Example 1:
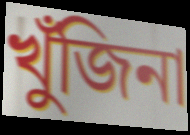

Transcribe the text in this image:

খুঁজিনা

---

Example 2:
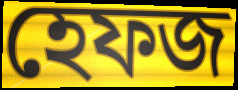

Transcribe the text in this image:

হেফজ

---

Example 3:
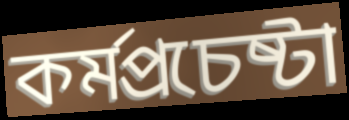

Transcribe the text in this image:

কর্মপ্রচেষ্টা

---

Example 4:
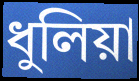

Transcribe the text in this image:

ধুলিয়া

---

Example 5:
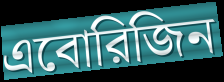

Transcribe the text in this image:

এবোরিজিন